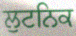
ਲੁਟਨਿਕ